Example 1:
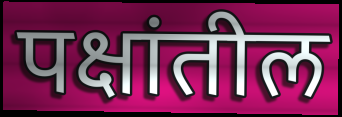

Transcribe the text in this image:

पक्षांतील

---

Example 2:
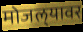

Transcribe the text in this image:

मोजल्यावर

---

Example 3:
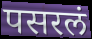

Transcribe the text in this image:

पसरलं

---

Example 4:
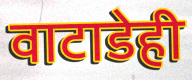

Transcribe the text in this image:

वाटाडेही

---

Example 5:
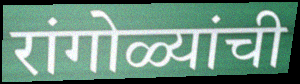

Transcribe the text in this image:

रांगोळ्यांची